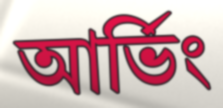
আর্ভিং